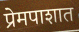
प्रेमपाशात